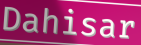
Dahisar